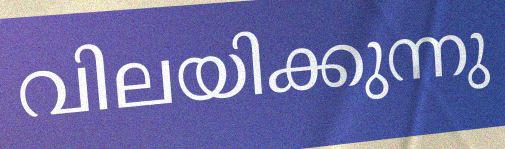
വിലയിക്കുന്നു